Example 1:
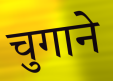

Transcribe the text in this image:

चुगाने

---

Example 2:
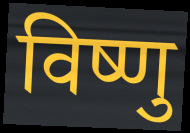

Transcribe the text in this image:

विष्णु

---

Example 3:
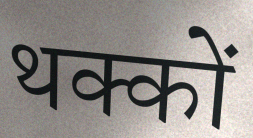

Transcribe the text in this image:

थक्कों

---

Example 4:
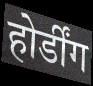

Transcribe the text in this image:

होर्डींग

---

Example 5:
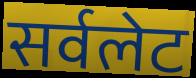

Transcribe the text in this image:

सर्वलेट